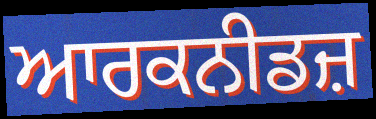
ਆਰਕਨੀਡਜ਼